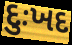
દુઃખદ